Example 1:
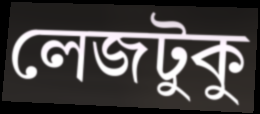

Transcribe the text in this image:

লেজটুকু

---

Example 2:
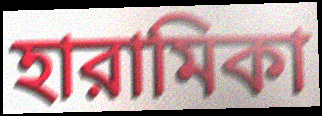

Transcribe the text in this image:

হারামিকা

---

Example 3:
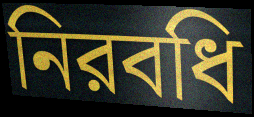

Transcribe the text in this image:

নিরবধি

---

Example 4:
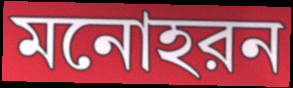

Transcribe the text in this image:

মনোহরন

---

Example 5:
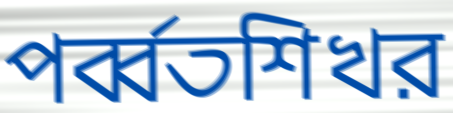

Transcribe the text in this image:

পর্ব্বতশিখর